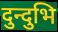
दुन्दुभि